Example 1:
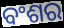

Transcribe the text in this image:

ବଂଶର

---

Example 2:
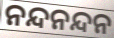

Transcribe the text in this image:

ନନ୍ଦନନ୍ଦନ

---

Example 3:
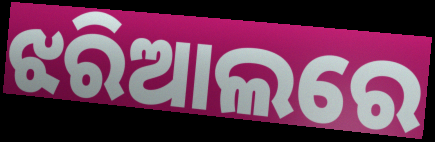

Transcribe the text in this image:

ଝରିଆଲରେ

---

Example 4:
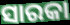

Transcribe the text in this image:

ସାରକା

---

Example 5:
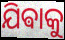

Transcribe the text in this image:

ଯିଵାକୁ